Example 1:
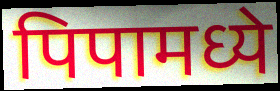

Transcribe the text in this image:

पिपामध्ये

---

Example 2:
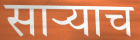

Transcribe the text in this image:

साऱ्याच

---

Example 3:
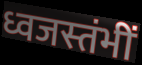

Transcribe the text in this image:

ध्वजस्तंभीं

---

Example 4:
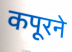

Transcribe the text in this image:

कपूरने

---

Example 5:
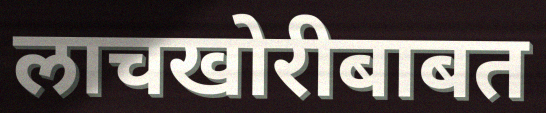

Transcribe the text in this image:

लाचखोरीबाबत